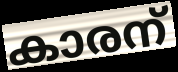
കാരന്